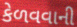
કેળવવાની